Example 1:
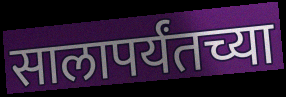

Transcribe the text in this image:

सालापर्यंतच्या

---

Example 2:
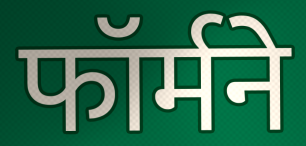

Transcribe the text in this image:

फॉर्मने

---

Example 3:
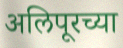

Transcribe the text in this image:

अलिपूरच्या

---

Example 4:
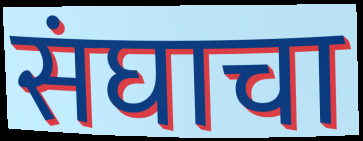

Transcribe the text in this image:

संघाचा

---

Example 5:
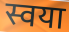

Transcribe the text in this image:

स्वया